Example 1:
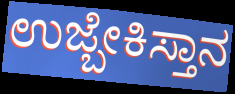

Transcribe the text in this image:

ಉಜ್ಬೇಕಿಸ್ತಾನ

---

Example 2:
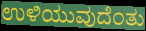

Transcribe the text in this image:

ಉಳಿಯುವುದೆಂತು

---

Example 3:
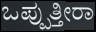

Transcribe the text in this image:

ಒಪ್ಪುತ್ತೀರಾ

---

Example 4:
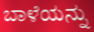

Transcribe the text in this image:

ಬಾಳೆಯನ್ನು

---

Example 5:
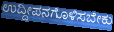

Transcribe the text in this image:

ಉದ್ದೀಪನಗೊಳಿಸಬೇಕು